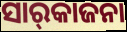
ସାର୍‌କାଜନା